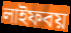
লাইফবয়